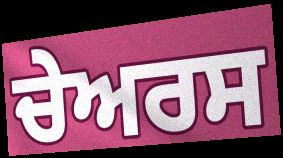
ਚੇਅਰਸ